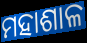
ମହାଶାଳ